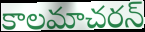
కాలమాచరన్